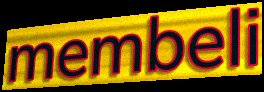
membeli